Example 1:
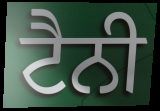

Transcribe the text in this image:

ਟੈਨੀ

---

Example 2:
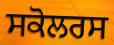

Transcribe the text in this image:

ਸਕੋਲਰਸ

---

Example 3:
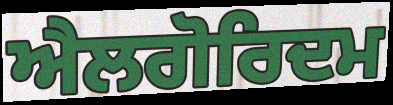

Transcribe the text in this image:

ਐਲਗੋਰਿਦਮ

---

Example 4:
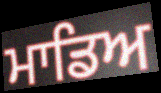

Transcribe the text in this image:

ਮਾਡਿਅ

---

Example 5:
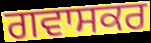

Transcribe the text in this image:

ਗਵਾਸਕਰ